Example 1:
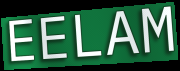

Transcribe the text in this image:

EELAM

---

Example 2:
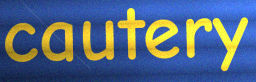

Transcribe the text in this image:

cautery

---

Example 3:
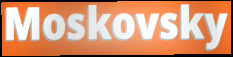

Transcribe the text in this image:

Moskovsky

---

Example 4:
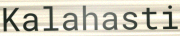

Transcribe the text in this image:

Kalahasti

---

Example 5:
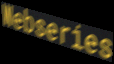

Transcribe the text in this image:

Webseries